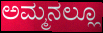
ಅಮ್ಮನಲ್ಲೂ